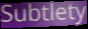
Subtlety